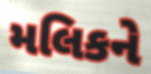
મલિકને